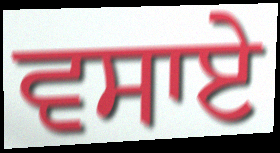
ਵਸਾਏ